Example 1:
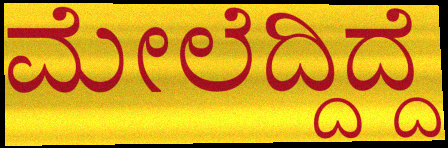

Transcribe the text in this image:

ಮೇಲೆದ್ದಿದ್ದೆ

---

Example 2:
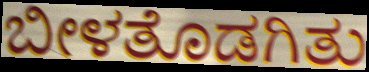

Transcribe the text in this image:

ಬೀಳತೊಡಗಿತು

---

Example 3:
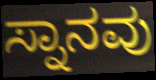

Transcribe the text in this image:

ಸ್ನಾನವು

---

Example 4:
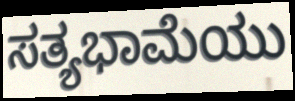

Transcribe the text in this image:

ಸತ್ಯಭಾಮೆಯು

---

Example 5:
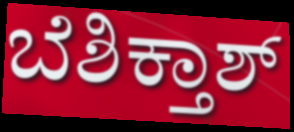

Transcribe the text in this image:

ಬೆಶಿಕ್ತಾಶ್